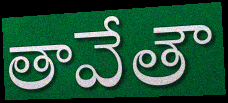
తావేతౌ